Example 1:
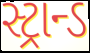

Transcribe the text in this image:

સ્ટ્રાન્ડ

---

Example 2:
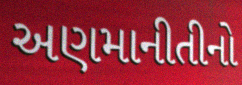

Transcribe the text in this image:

અણમાનીતીનો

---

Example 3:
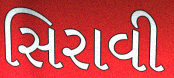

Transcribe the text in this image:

સિરાવી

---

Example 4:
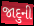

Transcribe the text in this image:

જાદુની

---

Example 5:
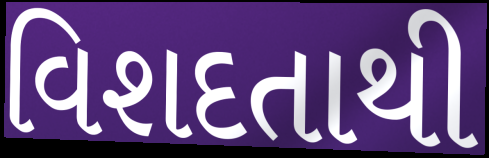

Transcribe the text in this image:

વિશદતાથી